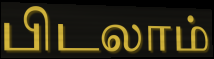
பிடலாம்